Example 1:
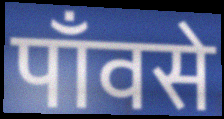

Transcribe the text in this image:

पाँवसे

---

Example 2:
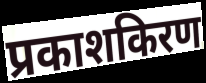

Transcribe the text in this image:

प्रकाशकिरण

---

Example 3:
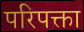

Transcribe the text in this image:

परिपक्ता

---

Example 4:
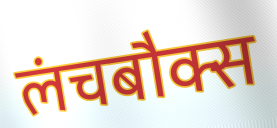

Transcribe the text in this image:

लंचबौक्स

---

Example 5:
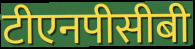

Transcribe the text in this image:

टीएनपीसीबी